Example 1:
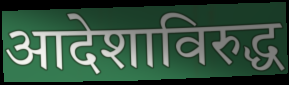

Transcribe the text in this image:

आदेशाविरुद्ध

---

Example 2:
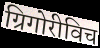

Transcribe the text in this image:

ग्रिगोरीविच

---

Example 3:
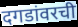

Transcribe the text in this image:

दगडांवरची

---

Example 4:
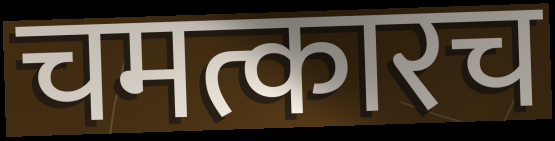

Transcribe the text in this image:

चमत्कारच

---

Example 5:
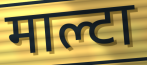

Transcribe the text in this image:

माल्टा